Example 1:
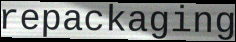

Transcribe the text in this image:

repackaging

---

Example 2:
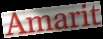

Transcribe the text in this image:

Amarit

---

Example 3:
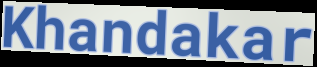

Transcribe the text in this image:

Khandakar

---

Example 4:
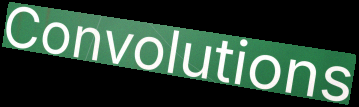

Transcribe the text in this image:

Convolutions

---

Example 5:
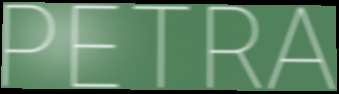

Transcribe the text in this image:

PETRA